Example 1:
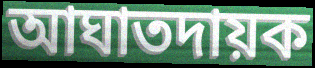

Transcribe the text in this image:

আঘাতদায়ক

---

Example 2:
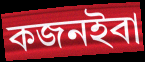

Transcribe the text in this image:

কজনইবা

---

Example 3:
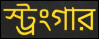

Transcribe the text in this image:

স্ট্রংগার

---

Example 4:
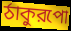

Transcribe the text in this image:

ঠাকুরপো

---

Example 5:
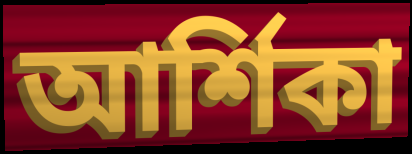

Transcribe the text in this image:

আর্শিকা